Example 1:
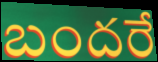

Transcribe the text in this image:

బందరే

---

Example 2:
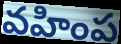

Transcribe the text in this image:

వహింప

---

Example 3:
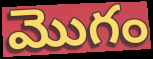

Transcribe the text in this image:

మొగం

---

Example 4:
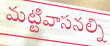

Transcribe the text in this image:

మట్టివాసనల్ని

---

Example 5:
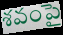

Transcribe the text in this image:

శవంపై